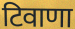
टिवाणा